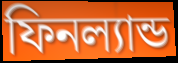
ফিনল্যান্ড